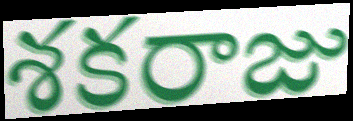
శకరాజు